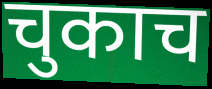
चुकाच